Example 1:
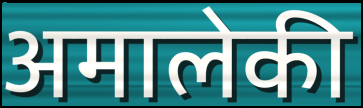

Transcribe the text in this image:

अमालेकी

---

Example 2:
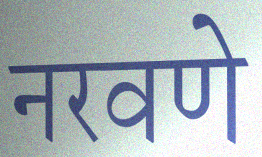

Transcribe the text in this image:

नरवणे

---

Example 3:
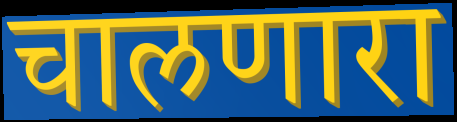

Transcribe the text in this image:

चालणारा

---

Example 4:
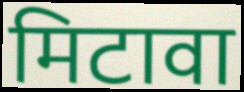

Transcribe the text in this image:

मिटावा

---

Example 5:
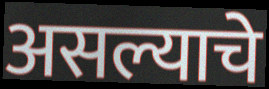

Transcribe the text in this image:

असल्याचे